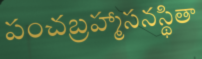
పంచబ్రహ్మాసనస్థితా